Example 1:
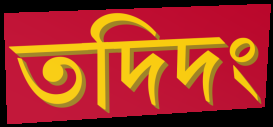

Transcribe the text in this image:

তদিদং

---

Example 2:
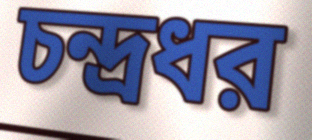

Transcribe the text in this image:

চন্দ্রধর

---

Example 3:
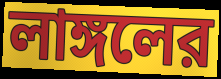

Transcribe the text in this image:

লাঙ্গলের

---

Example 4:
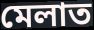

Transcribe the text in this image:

মেলাত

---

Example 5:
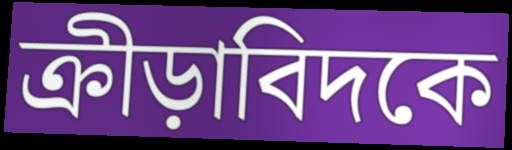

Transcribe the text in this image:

ক্রীড়াবিদকে